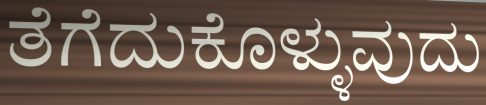
ತೆಗೆದುಕೊಳ್ಳುವುದು